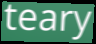
teary